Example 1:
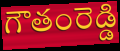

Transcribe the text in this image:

గౌతంరెడ్డి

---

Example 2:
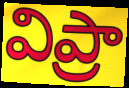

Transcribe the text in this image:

విప్రా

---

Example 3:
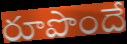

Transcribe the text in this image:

రూపొందే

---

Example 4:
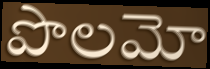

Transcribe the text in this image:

పొలమో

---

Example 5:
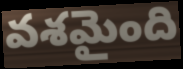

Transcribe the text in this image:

వశమైంది